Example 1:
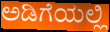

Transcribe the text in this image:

ಅಡಿಗೆಯಲ್ಲಿ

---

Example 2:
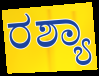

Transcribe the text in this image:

ರಶ್ಯಾ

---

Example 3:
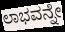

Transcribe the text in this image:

ಲಾಭವನ್ನೇ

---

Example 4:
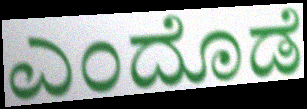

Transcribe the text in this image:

ಎಂದೊಡೆ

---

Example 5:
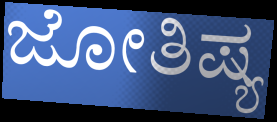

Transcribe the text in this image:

ಜೋತಿಷ್ಯ